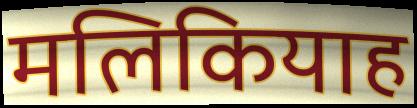
मलिकियाह